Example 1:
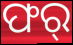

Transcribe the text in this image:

ଫର୍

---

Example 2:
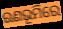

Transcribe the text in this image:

ଋଣଭୂମିରେ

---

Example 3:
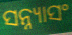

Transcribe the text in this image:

ସନ୍ନ୍ୟାସଂ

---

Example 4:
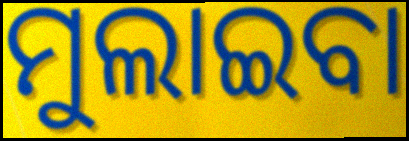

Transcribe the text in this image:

ମୁଲାଇବା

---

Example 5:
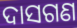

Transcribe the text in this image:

ଦାସଗଣ